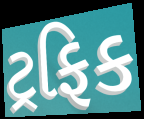
ટ્રફિક